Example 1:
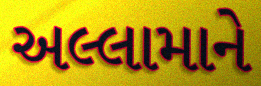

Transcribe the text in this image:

અલ્લામાને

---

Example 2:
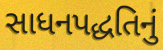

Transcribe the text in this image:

સાધનપદ્ધતિનું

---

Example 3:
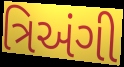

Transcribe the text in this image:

ત્રિઅંગી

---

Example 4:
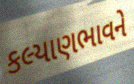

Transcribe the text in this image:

કલ્યાણભાવને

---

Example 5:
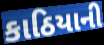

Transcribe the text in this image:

કાઠિયાની